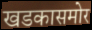
खडकासमोर